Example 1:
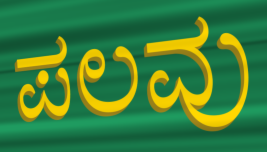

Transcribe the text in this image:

ಪಲವು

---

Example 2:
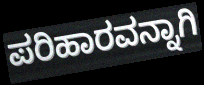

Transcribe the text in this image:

ಪರಿಹಾರವನ್ನಾಗಿ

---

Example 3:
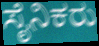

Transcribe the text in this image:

ಸೈನಿಕರು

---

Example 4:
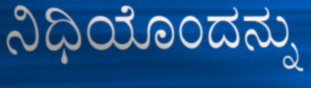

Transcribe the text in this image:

ನಿಧಿಯೊಂದನ್ನು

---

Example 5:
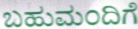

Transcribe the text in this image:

ಬಹುಮಂದಿಗೆ